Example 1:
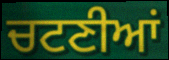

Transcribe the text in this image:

ਚਟਣੀਆਂ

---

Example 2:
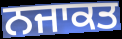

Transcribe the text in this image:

ਨਜਾਕਤ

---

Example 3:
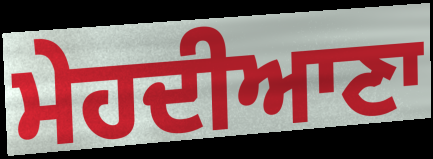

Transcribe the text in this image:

ਮੇਹਦੀਆਣਾ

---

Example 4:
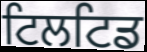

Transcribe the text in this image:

ਟਿਲਟਿਡ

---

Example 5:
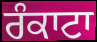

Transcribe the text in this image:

ਰੰਕਾਟਾ